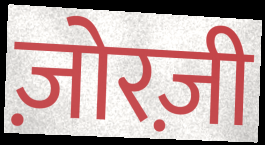
ज़ोरज़ी